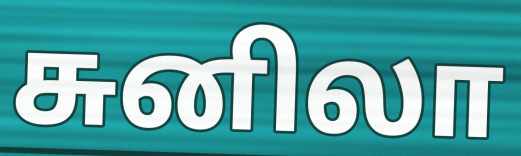
சுனிலா